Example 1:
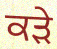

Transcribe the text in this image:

ਕੜੇ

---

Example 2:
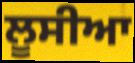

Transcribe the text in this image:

ਲੂਸੀਆ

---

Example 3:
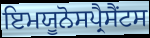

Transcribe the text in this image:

ਇਮਯੂਨੋਸਪ੍ਰੈਸੈਂਟਸ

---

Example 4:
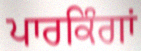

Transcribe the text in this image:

ਪਾਰਕਿੰਗਾਂ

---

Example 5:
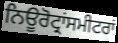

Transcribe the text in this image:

ਨਿਊਰੋਟ੍ਰਾਂਸਮੀਟਰਾਂ